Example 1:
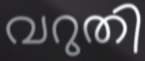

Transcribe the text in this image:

വറുതി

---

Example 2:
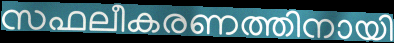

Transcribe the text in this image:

സഫലീകരണത്തിനായി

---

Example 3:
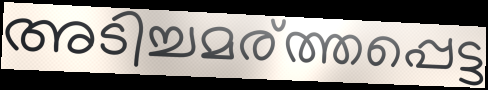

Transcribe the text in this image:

അടിച്ചമര്ത്തപ്പെട്ട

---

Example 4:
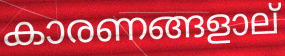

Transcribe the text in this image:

കാരണങ്ങളാല്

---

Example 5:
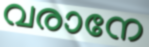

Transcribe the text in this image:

വരാനേ